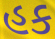
હક